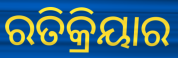
ରତିକ୍ରିୟାର